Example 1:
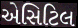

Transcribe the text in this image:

એસિટિલ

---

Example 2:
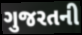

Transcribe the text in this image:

ગુજરતની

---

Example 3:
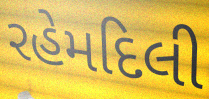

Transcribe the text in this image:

રહેમદિલી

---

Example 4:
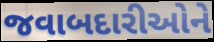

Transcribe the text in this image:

જવાબદારીઓને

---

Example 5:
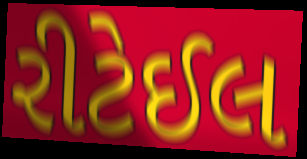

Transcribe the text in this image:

રીટેઈલ